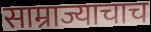
साम्राज्याचाच